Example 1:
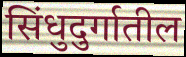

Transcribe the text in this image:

सिंधुदुर्गातील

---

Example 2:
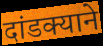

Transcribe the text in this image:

दांडक्याने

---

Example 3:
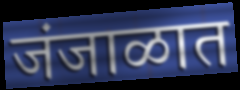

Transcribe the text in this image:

जंजाळात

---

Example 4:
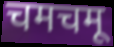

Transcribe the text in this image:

चमचमू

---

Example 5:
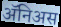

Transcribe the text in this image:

ॲनिअस